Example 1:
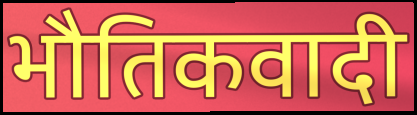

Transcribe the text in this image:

भौतिकवादी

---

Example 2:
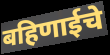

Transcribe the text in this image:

बहिणाईचे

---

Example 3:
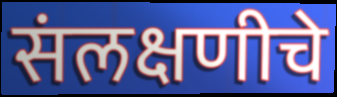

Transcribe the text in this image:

संलक्षणीचे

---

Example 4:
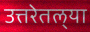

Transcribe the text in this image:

उत्तरेतल्या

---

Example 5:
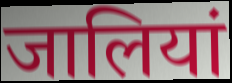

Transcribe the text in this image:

जालियां